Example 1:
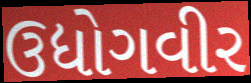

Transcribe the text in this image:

ઉદ્યોગવીર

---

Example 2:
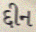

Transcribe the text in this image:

દ્દીન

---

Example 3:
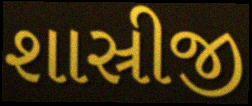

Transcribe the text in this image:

શાસ્રીજી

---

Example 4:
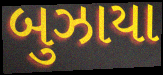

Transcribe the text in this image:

બુઝાયા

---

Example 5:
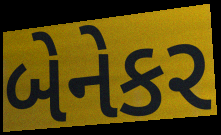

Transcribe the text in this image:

બેનેકર